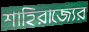
শাহিরাজ্যের